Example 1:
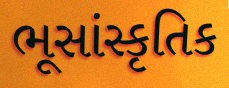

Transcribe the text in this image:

ભૂસાંસ્કૃતિક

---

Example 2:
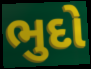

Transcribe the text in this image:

ભુદો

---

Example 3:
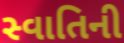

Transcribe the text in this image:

સ્વાતિની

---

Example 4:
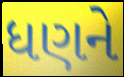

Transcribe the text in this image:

ધણને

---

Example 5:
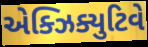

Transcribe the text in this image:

એક્ઝિક્યુટિવે